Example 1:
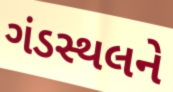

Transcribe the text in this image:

ગંડસ્થલને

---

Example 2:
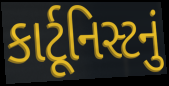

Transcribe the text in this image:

કાર્ટૂનિસ્ટનું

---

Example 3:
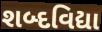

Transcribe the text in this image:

શબ્દવિદ્યા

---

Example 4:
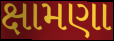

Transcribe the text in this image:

ક્ષામણા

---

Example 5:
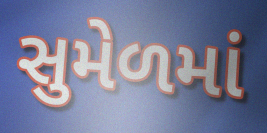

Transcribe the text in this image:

સુમેળમાં